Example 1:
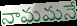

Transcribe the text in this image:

నామమనే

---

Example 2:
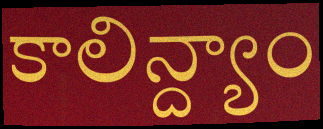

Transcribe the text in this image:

కాలిన్ద్యాం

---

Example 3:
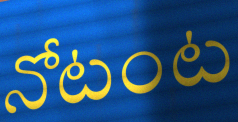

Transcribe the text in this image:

నోటంట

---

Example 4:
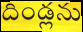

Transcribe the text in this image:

దిండ్లను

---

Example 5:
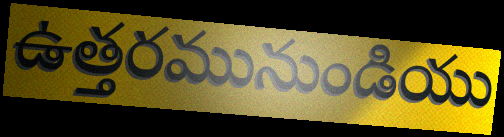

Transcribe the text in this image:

ఉత్తరమునుండియు